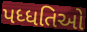
પધ્ધતિઓ